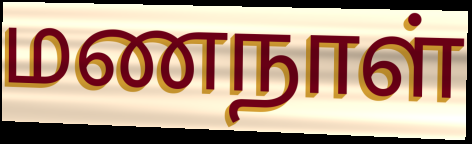
மணநாள்